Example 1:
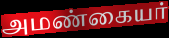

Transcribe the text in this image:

அமண்கையர்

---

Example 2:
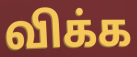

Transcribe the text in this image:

விக்க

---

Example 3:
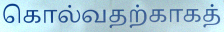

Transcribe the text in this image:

கொல்வதற்காகத்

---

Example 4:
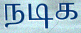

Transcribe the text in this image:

நடிக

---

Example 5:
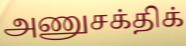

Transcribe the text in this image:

அணுசக்திக்